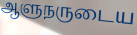
ஆளுநருடைய